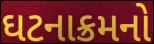
ઘટનાક્રમનો